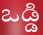
ఒడ్డి